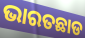
ଭାରତଛାଡ